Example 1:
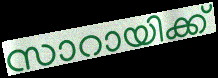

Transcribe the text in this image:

സാറായിക്ക്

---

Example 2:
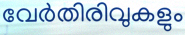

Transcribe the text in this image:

വേർതിരിവുകളും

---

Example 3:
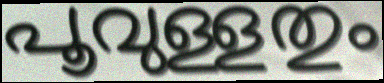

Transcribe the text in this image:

പൂവുള്ളതും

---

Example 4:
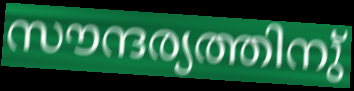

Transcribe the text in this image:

സൗന്ദര്യത്തിനു്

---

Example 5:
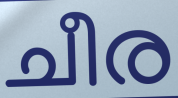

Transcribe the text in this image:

ചീര